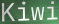
Kiwi